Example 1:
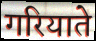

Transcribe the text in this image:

गरियाते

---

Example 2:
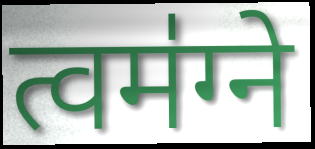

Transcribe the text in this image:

त्वम॑ग्ने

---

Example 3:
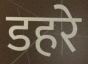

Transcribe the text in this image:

डहरे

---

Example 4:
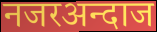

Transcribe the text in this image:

नजरअन्दाज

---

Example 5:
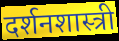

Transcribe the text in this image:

दर्शनशास्त्री